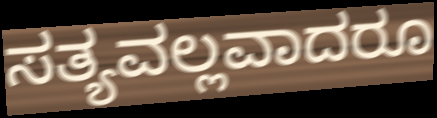
ಸತ್ಯವಲ್ಲವಾದರೂ